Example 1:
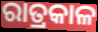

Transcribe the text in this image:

ରାତ୍ରକାଳ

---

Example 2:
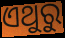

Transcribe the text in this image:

ଏଥୁରୁ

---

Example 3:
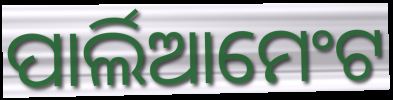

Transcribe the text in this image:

ପାର୍ଲିଆମେଂଟ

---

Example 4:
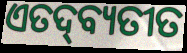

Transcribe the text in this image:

ଏତଦ୍‍ବ୍ୟତୀତ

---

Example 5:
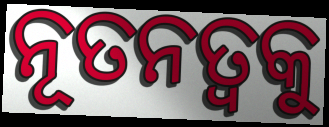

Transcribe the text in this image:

ନୂତନତ୍ବକୁ